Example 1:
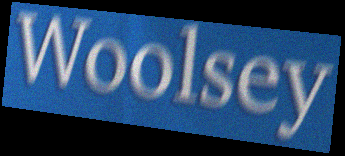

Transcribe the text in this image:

Woolsey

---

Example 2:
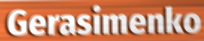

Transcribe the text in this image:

Gerasimenko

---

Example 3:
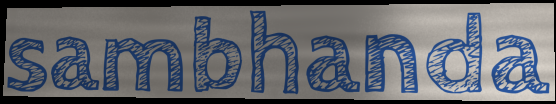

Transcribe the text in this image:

sambhanda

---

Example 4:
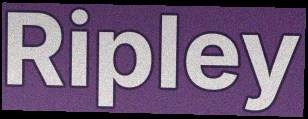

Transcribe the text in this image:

Ripley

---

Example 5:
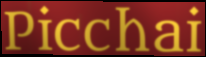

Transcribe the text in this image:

Picchai